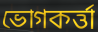
ভোগকর্ত্তা